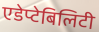
एडेप्टेबिलिटी